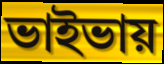
ভাইভায়